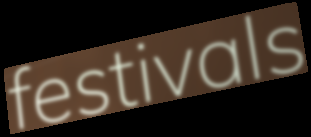
festivals